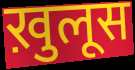
ख़ुलूस